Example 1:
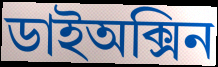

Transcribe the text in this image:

ডাইঅক্সিন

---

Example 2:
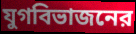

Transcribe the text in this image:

যুগবিভাজনের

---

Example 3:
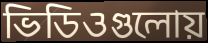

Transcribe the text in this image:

ভিডিওগুলোয়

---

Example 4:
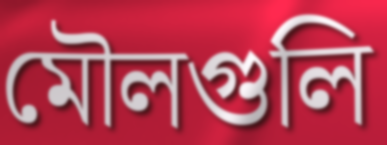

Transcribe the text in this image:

মৌলগুলি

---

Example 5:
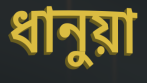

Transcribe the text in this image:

ধানুয়া